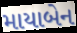
માયાબેન